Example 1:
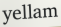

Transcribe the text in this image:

yellam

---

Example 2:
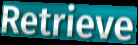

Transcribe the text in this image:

Retrieve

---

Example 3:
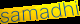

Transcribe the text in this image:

samadhi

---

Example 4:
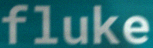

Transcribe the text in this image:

fluke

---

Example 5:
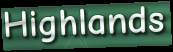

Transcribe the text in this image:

Highlands